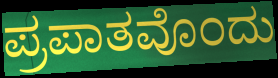
ಪ್ರಪಾತವೊಂದು